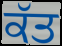
ਕੱਤ